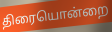
திரையொன்றை